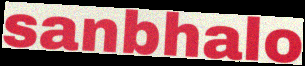
sanbhalo